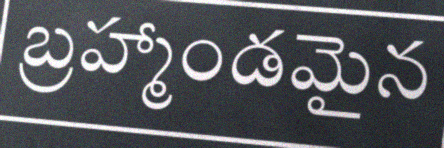
బ్రహ్మాండమైన